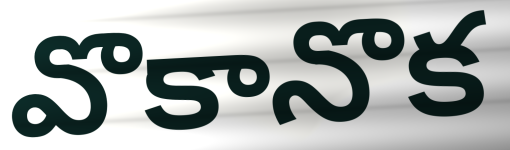
వొకానొక